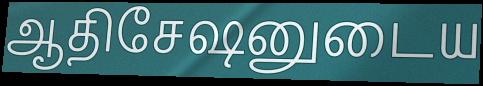
ஆதிசேஷனுடைய